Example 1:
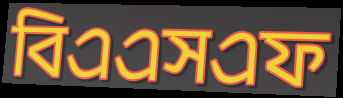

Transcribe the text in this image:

বিএএসএফ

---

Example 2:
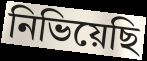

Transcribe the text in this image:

নিভিয়েছি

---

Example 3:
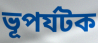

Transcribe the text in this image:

ভূপর্যটক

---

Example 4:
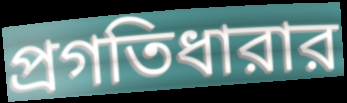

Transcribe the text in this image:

প্রগতিধারার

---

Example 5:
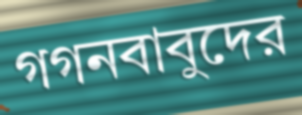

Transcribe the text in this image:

গগনবাবুদের